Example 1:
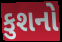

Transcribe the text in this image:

કુશનો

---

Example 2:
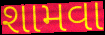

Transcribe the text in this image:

શામવા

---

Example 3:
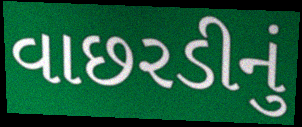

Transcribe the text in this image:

વાછરડીનું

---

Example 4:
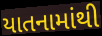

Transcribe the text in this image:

યાતનામાંથી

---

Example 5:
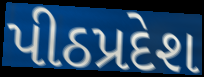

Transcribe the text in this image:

પીઠપ્રદેશ